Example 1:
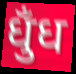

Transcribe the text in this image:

धुँध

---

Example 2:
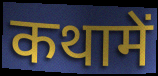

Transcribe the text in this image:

कथामें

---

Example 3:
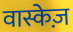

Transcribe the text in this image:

वास्केज़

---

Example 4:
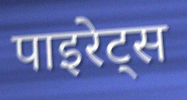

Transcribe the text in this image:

पाइरेट्स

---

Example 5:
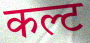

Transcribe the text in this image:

कल्ट